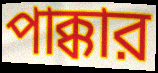
পাক্কার